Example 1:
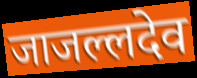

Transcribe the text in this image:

जाजल्लदेव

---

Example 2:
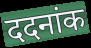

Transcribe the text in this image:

ददनांक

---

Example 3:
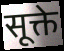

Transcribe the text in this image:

सूक्ते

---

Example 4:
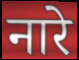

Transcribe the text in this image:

नारे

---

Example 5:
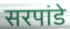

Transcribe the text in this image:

सरपांडे